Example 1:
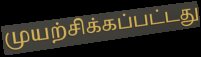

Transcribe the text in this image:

முயற்சிக்கப்பட்டது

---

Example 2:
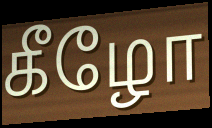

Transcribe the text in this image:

கீழோ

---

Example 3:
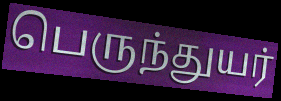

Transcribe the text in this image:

பெருந்துயர்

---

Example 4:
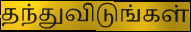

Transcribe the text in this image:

தந்துவிடுங்கள்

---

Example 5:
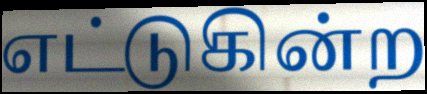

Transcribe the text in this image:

எட்டுகின்ற